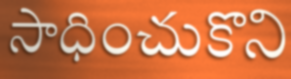
సాధించుకొని